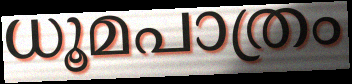
ധൂമപാത്രം